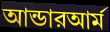
আন্ডারআর্ম